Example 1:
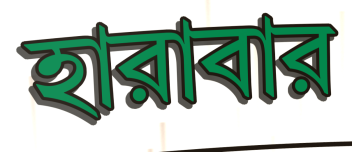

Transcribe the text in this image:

হারাবার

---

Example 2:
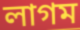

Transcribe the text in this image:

লাগম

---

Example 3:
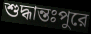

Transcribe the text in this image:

শুদ্ধান্তঃপুরে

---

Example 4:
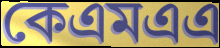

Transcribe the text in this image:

কেএমএএ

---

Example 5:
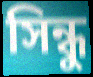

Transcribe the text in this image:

সিন্ধু